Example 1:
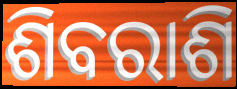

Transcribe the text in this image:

ଶିବରାଶି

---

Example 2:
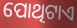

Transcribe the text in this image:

ପୋଥିଟାଏ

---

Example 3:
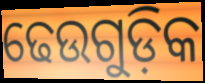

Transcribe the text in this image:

ଢେଉଗୁଡ଼ିକ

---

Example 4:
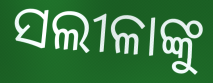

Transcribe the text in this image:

ସଲୀଳାଙ୍କୁ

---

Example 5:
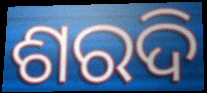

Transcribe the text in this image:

ଶରଦି